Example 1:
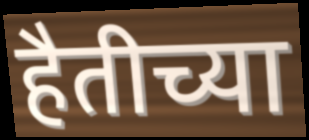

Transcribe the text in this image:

हैतीच्या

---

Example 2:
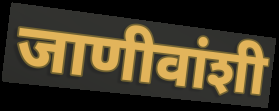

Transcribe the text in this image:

जाणीवांशी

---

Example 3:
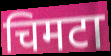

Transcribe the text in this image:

चिमटा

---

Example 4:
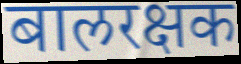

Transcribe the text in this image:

बालरक्षक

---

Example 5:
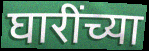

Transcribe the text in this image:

घारींच्या